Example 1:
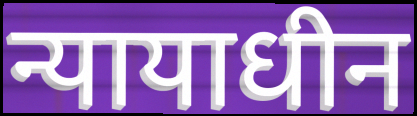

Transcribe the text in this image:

न्यायाधीन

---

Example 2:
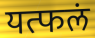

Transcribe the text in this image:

यत्फलं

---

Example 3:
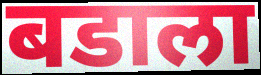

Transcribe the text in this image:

बडाला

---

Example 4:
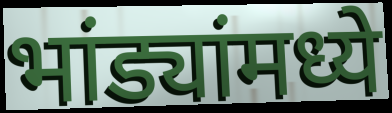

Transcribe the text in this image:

भांड्यांमध्ये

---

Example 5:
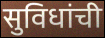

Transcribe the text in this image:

सुविधांची